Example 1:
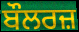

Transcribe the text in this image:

ਬੌਲਰਜ਼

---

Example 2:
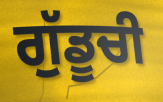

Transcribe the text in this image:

ਗੁੱਡੂਚੀ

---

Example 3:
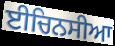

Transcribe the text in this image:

ਈਚਿਨਸੀਆ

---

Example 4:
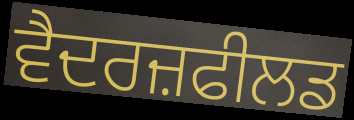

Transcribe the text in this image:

ਵੈਦਰਜ਼ਫੀਲਡ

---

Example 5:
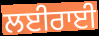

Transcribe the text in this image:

ਲਈਰਾਈ